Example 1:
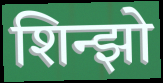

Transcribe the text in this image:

शिन्झो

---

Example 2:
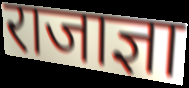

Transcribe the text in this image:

राजाज्ञा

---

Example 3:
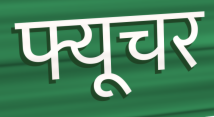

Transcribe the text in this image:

फ्यूचर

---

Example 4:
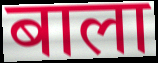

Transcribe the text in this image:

बाला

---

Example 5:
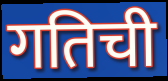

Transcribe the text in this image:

गतिची